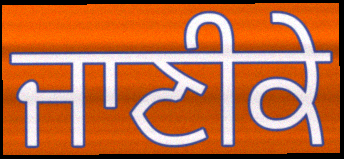
ਜਾਣੀਕੇ